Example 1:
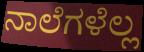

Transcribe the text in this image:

ನಾಲೆಗಳೆಲ್ಲ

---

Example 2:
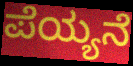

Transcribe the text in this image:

ಪೆಯ್ಯನೆ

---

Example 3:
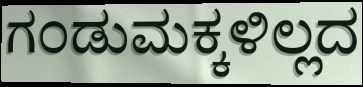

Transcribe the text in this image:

ಗಂಡುಮಕ್ಕಳಿಲ್ಲದ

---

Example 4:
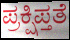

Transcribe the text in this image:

ಪ್ರಕ್ಷಿಪ್ತತೆ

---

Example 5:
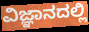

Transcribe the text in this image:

ವಿಜ್ಞಾನದಲ್ಲಿ